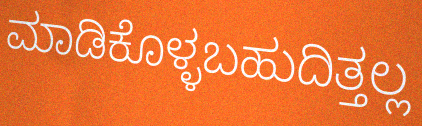
ಮಾಡಿಕೊಳ್ಳಬಹುದಿತ್ತಲ್ಲ